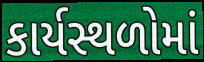
કાર્યસ્થળોમાં